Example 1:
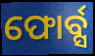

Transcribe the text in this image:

ଫୋର୍ବ୍ସ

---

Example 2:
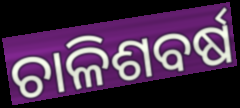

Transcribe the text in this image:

ଚାଳିଶବର୍ଷ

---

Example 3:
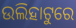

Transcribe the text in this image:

ଉଲିହାଟୁରେ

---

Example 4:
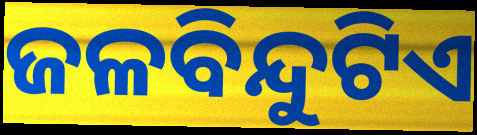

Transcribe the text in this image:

ଜଳବିନ୍ଦୁଟିଏ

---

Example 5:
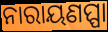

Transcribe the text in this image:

ନାରାୟଣପ୍ପା